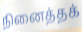
நினைத்தக்